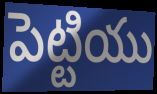
పెట్టియు